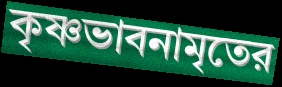
কৃষ্ণভাবনামৃতের